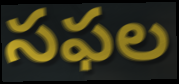
సఫల